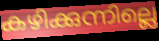
കഴിക്കുന്നില്ലെ